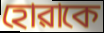
হোৱাকে